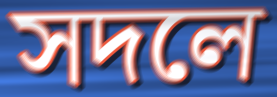
সদলে